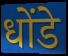
धोंडे